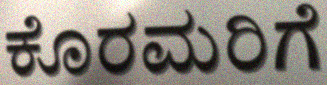
ಕೊರಮರಿಗೆ